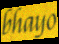
bhayo